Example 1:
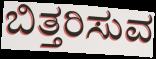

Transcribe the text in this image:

ಬಿತ್ತರಿಸುವ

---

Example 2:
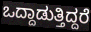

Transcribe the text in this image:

ಒದ್ದಾಡುತ್ತಿದ್ದರೆ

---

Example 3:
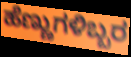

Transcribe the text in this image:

ಹೆಣ್ಣುಗಳಿಬ್ಬರ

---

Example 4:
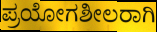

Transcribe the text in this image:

ಪ್ರಯೋಗಶೀಲರಾಗಿ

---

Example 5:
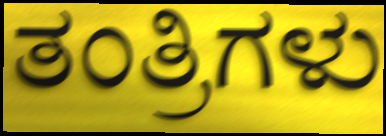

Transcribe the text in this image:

ತಂತ್ರಿಗಳು